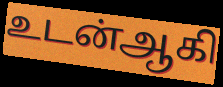
உடன்ஆகி